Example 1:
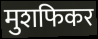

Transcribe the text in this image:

मुशफिकर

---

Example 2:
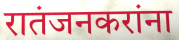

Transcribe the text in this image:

रातंजनकरांना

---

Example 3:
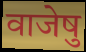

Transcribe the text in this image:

वाजेषु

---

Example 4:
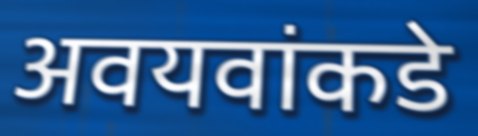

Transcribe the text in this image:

अवयवांकडे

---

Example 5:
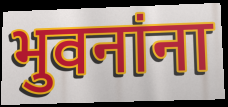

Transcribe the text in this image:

भुवनांना